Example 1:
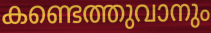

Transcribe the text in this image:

കണ്ടെത്തുവാനും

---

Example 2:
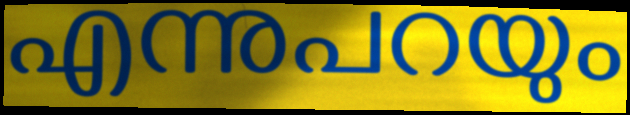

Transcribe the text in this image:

എന്നുപറയും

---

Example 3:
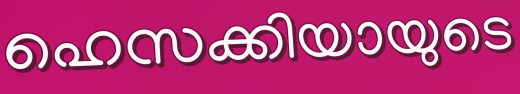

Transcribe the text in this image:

ഹെസക്കിയായുടെ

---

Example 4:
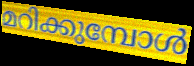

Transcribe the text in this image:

മറിക്കുമ്പോൾ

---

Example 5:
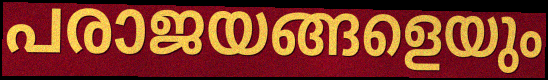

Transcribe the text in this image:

പരാജയങ്ങളെയും